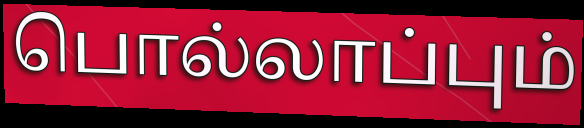
பொல்லாப்பும்